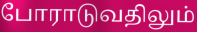
போராடுவதிலும்